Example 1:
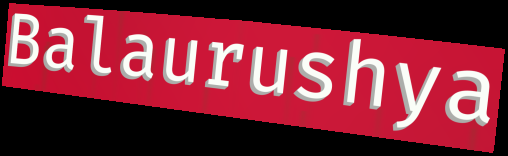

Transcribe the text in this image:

Balaurushya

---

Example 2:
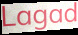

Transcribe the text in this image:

Lagad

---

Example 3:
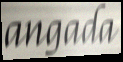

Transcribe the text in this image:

angada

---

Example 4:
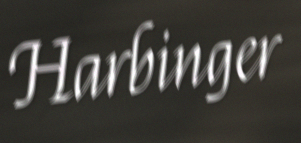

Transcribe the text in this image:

Harbinger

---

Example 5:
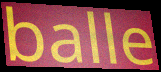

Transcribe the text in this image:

balle